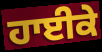
ਹਾਈਕੇ